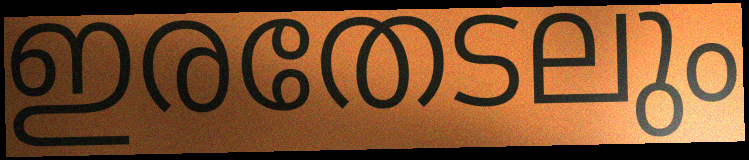
ഇരതേടലും